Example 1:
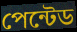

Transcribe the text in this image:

পেন্টেড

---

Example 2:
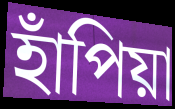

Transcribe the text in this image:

হাঁপিয়া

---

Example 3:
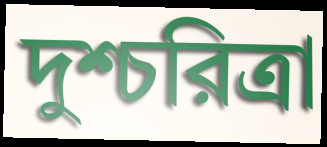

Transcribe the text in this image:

দুশ্চরিত্রা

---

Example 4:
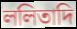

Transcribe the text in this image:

ললিতাদি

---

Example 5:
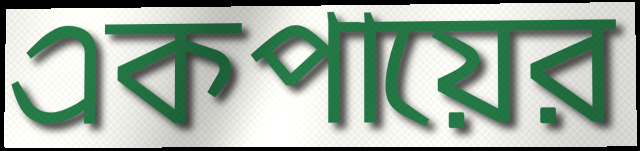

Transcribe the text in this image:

একপায়ের